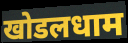
खोडलधाम